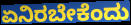
ಏನಿರಬೇಕೆಂದು